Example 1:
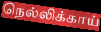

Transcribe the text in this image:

நெல்லிக்காய்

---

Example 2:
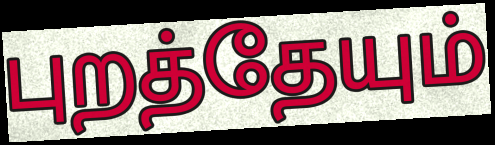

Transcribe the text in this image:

புறத்தேயும்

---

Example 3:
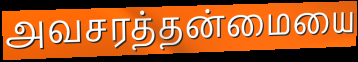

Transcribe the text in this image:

அவசரத்தன்மையை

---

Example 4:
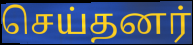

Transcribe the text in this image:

செய்தனர்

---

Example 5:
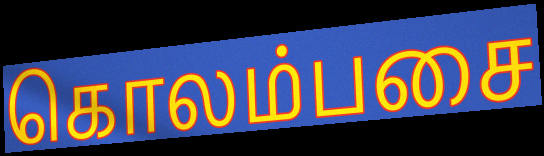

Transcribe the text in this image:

கொலம்பசை